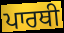
ਪਾਰਥੀ